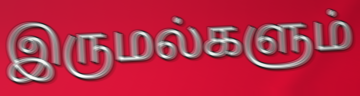
இருமல்களும்